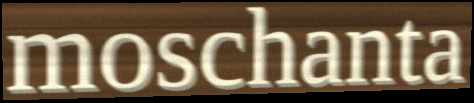
moschanta